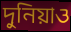
দুনিয়াও